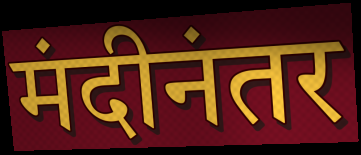
मंदीनंतर